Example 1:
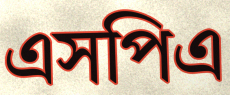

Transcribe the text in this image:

এসপিএ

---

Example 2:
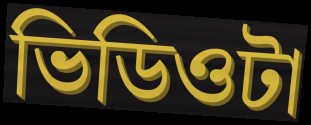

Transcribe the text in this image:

ভিডিওটা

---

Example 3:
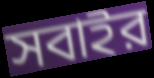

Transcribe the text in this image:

সবাইর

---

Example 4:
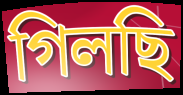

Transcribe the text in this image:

গিলছি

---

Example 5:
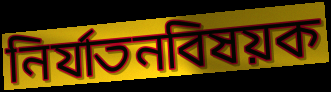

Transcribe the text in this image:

নির্যাতনবিষয়ক